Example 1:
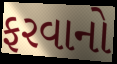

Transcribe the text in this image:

ફરવાનો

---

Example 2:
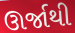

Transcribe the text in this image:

ઊર્જાથી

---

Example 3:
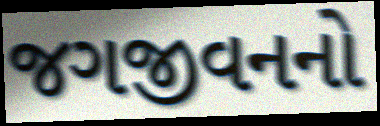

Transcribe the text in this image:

જગજીવનનો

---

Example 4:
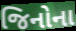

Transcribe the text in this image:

જિનોના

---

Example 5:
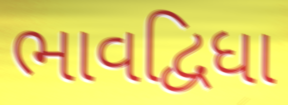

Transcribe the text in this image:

ભાવદ્વિધા